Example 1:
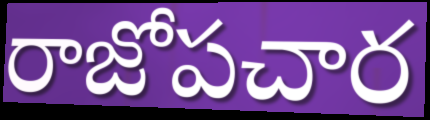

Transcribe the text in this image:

రాజోపచార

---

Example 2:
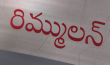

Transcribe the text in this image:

రిమ్ములన్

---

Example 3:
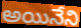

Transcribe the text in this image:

అయినేని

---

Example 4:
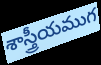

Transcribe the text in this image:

శాస్త్రీయముగ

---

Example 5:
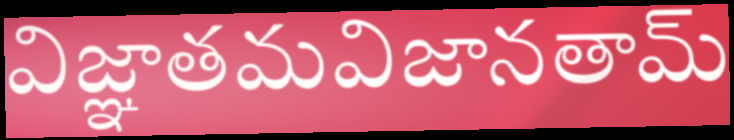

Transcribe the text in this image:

విజ్ఞాతమవిజానతామ్